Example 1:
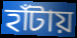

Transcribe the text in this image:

হাঁটায়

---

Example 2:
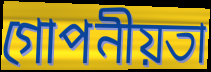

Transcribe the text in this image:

গোপনীয়তা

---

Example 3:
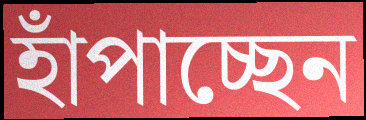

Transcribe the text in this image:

হাঁপাচ্ছেন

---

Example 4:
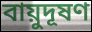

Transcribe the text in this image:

বায়ুদূষণ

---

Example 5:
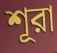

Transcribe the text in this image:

শূরা